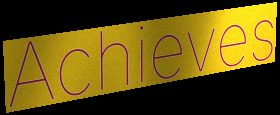
Achieves